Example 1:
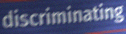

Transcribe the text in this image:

discriminating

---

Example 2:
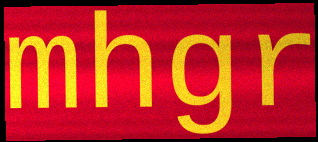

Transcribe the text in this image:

mhgr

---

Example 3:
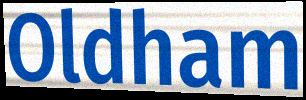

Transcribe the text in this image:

Oldham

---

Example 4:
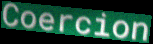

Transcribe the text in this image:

Coercion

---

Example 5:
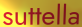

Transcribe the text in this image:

suttella